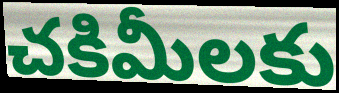
చకిమీలకు